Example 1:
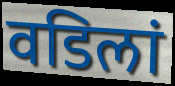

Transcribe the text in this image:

वडिलां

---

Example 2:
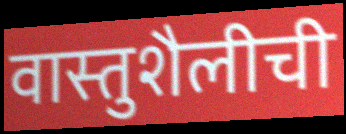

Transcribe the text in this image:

वास्तुशैलीची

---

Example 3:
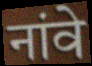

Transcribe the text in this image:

नांवे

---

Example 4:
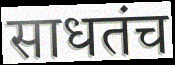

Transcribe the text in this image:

साधतंच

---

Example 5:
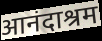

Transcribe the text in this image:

आनंदाश्रम